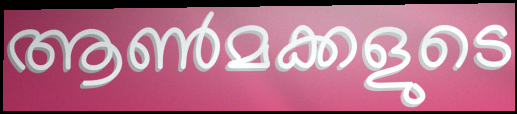
ആൺമക്കളുടെ